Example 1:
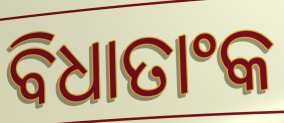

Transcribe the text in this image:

ବିଧାତାଂକ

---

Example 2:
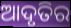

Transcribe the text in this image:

ଆଦୃତିର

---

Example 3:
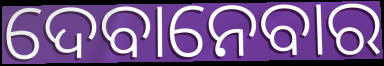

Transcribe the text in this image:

ଦେବାନେବାର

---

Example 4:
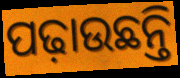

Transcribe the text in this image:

ପଢ଼ାଉଛନ୍ତି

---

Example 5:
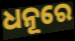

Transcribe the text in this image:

ଧନୂରେ